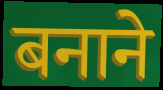
बनाने